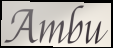
Ambu